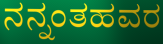
ನನ್ನಂತಹವರ